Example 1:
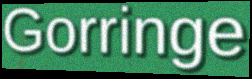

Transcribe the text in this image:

Gorringe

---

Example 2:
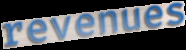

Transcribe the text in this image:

revenues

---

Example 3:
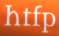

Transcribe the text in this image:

htfp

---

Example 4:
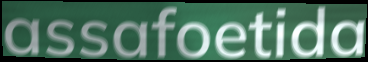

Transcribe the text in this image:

assafoetida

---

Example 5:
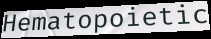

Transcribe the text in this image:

Hematopoietic